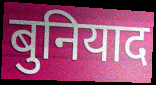
बुनियाद